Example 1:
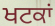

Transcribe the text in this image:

ਖਟਕਾਂ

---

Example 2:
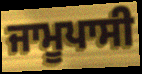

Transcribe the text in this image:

ਜਾਮੂਪਾਸੀ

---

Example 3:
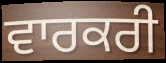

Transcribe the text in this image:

ਵਾਰਕਰੀ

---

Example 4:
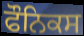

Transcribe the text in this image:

ਫੌਨਿਕਸ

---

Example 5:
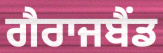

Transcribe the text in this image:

ਗੈਰਾਜਬੈਂਡ